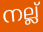
നല്ല്